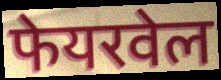
फेयरवेल